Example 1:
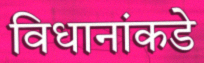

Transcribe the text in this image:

विधानांकडे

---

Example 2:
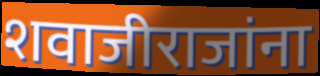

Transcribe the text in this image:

शवाजीराजांना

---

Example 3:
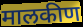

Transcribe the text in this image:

मालकीण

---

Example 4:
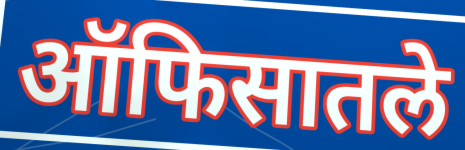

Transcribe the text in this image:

ऑफिसातले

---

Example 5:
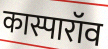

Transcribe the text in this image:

कास्पारॉव